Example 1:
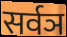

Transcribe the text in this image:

सर्वञ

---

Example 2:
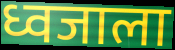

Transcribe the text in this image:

ध्वजाला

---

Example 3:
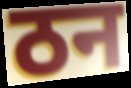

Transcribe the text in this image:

ठन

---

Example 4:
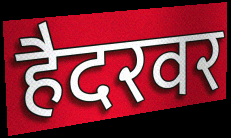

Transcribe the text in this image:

हैदरवर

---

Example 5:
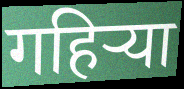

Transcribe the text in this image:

गहिर्‍या